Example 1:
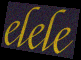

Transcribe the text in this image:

elele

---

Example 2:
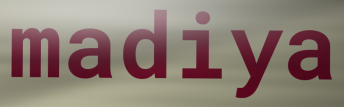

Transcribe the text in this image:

madiya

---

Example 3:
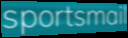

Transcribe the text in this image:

sportsmail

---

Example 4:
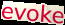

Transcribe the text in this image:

evoke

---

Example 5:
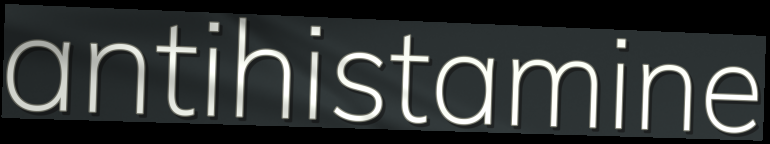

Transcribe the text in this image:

antihistamine